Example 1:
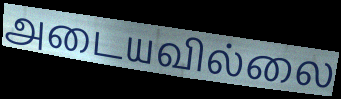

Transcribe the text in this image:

அடையவில்லை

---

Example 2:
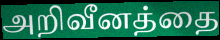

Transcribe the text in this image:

அறிவீனத்தை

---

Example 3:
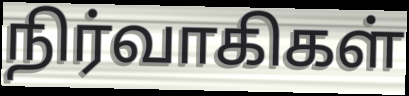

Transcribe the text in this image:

நிர்வாகிகள்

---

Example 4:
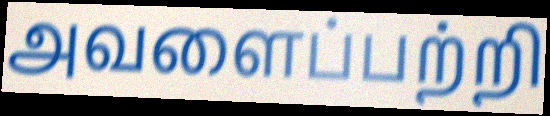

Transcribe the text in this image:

அவளைப்பற்றி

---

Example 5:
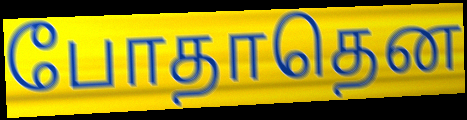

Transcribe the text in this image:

போதாதென